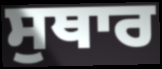
ਸੁਥਾਰ